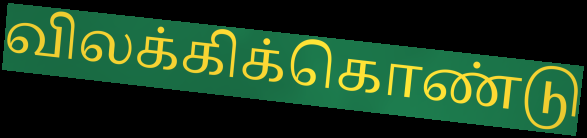
விலக்கிக்கொண்டு